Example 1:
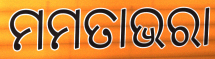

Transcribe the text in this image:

ମମତାଭରା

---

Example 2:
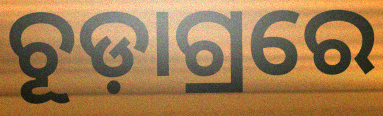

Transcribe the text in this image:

ଚୂଡ଼ାଗ୍ରରେ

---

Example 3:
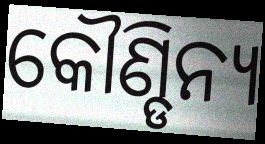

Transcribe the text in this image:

କୌଣ୍ଡିନ୍ୟ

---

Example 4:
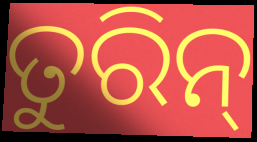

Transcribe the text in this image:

ତୁରିନ୍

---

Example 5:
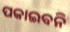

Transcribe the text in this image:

ପକାଇବନି